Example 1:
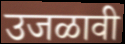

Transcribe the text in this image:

उजळावी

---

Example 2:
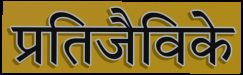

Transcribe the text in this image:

प्रतिजैविके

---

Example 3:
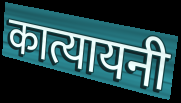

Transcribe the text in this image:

कात्यायनी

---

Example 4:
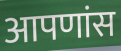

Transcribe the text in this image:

आपणांस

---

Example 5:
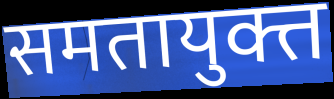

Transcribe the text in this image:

समतायुक्त